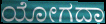
ಯೋಗದಾ